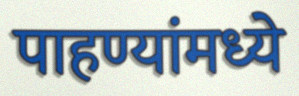
पाहण्यांमध्ये